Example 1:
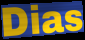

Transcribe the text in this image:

Dias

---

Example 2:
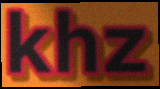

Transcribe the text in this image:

khz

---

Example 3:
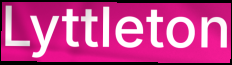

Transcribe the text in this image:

Lyttleton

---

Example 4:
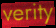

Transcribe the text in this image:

verity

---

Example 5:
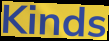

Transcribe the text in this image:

Kinds